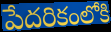
పేదరికంలోకి